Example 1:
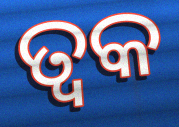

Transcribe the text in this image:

ତ୍ୱକ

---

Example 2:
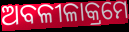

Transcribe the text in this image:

ଅବଳୀଳାକ୍ରମେ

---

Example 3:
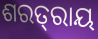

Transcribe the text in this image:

ଶରତ୍‌ରାୟ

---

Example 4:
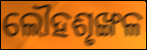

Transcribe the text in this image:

ଲୌହଶୃଙ୍ଖଳ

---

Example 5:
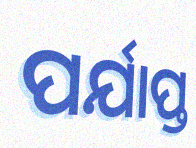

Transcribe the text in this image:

ପର୍ଯାପ୍ତ